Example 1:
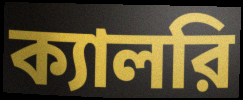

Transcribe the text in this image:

ক্যালরি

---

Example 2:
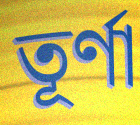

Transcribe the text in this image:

তূর্ণা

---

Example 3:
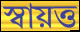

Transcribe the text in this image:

স্বায়ত্ত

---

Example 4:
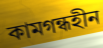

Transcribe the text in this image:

কামগন্ধহীন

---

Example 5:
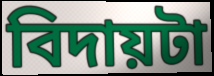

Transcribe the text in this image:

বিদায়টা